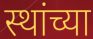
स्थांच्या